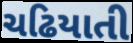
ચઢિયાતી